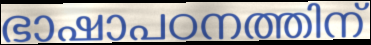
ഭാഷാപഠനത്തിന്